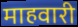
माहवारी